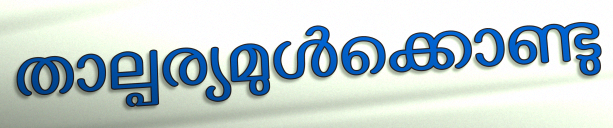
താല്പര്യമുൾക്കൊണ്ടു